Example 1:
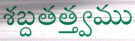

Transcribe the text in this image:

శబ్దతత్త్వము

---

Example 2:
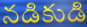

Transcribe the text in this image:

నడికుడి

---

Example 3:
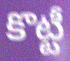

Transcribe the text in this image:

కొట్టీ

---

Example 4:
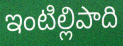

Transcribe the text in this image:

ఇంటిల్లిపాది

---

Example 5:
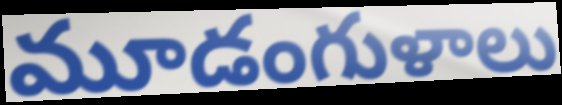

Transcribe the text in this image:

మూడంగుళాలు